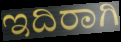
ಇದಿರಾಗಿ